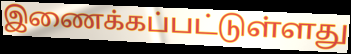
இணைக்கப்பட்டுள்ளது